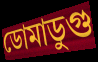
ডোমাডুগু